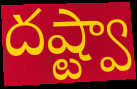
దష్ట్వా